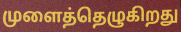
முளைத்தெழுகிறது